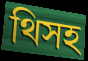
থিসহ